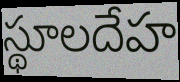
స్థూలదేహ